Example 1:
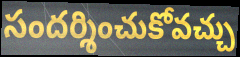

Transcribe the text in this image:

సందర్శించుకోవచ్చు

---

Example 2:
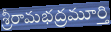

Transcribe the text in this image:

శ్రీరామభద్రమూర్తి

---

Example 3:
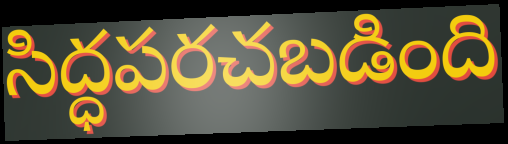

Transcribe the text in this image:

సిద్ధపరచబడింది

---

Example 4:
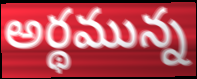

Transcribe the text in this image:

అర్థమున్న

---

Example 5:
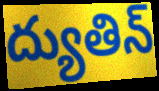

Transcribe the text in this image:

ద్యుతిన్